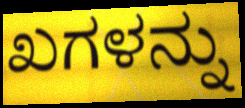
ಖಗಳನ್ನು